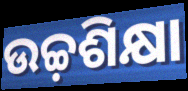
ଉଚ୍ଚ଼ଶିକ୍ଷା